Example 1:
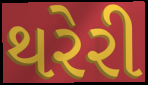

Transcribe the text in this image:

થરેરી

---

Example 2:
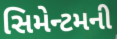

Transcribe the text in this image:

સિમેન્ટમની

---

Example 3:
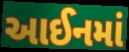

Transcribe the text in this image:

આઈનમાં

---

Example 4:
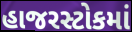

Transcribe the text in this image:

હાજરસ્ટોકમાં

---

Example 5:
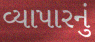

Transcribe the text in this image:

વ્યાપારનું